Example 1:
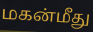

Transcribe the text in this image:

மகன்மீது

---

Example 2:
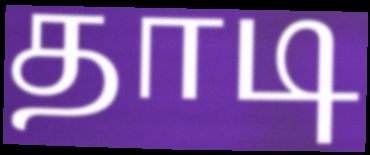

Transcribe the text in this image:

தாடி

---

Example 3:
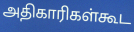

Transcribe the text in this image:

அதிகாரிகள்கூட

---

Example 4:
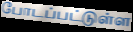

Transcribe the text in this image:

போடப்பட்டுள்ள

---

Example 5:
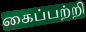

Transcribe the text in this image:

கைப்பற்றி